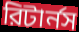
রিটার্নস